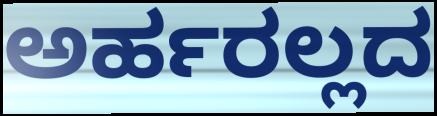
ಅರ್ಹರಲ್ಲದ